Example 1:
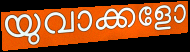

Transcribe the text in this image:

യുവാക്കളോ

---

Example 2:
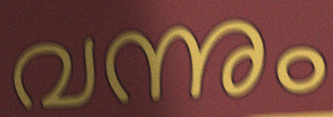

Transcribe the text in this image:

വന്നും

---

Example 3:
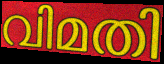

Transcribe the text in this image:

വിമതി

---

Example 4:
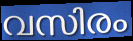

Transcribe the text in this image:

വസിരം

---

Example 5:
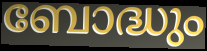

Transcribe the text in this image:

ബോദ്ധും